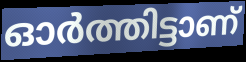
ഓർത്തിട്ടാണ്